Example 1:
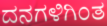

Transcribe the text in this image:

ದನಗಳಿಗಿಂತ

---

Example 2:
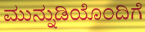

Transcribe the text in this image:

ಮುನ್ನುಡಿಯೊಂದಿಗೆ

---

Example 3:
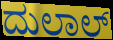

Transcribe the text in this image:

ದುಲಾಲ್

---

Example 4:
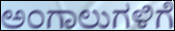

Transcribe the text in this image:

ಅಂಗಾಲುಗಳಿಗೆ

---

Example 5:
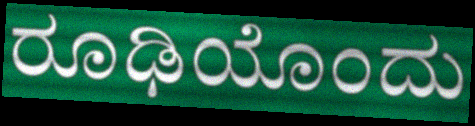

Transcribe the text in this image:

ರೂಢಿಯೊಂದು